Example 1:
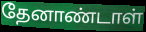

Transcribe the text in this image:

தேனாண்டாள்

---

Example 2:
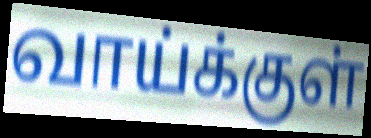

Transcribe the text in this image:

வாய்க்குள்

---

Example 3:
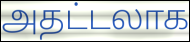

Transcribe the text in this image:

அதட்டலாக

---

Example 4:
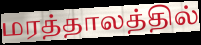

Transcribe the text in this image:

மரத்தாலத்தில்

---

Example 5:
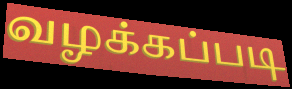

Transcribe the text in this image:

வழக்கப்படி